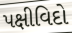
પક્ષીવિદો